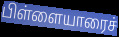
பிள்ளையாரைச்